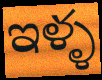
ఇళ్ళ